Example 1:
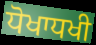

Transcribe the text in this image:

ਧੋਖਾਧਖੀ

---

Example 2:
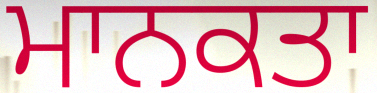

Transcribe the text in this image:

ਮਾਨਕਤਾ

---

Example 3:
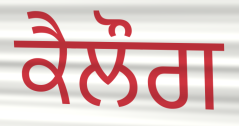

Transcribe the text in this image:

ਕੈਲੌਗ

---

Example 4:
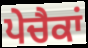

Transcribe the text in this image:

ਪੇਚੈਕਾਂ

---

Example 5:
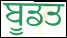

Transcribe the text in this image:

ਬੂਡਤ